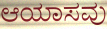
ಆಯಾಸವು